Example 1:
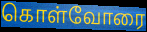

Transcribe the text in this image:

கொள்வோரை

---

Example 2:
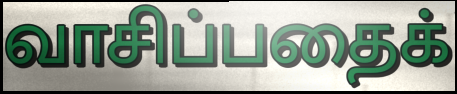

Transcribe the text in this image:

வாசிப்பதைக்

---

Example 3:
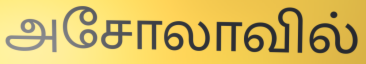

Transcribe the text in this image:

அசோலாவில்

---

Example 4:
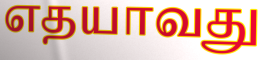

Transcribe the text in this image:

எதயாவது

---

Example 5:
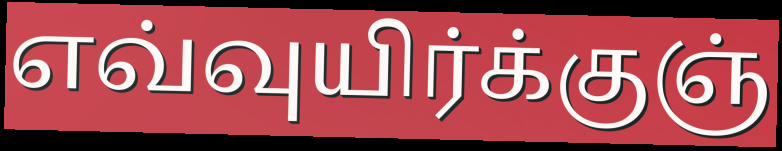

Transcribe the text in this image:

எவ்வுயிர்க்குஞ்